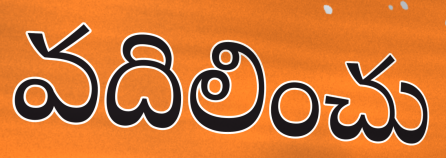
వదిలించు